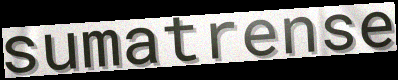
sumatrense